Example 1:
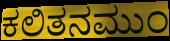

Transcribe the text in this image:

ಕಲಿತನಮುಂ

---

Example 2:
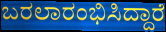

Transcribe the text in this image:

ಬರಲಾರಂಭಿಸಿದ್ದಾರೆ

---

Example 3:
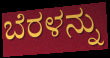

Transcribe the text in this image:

ಬೆರಳನ್ನು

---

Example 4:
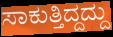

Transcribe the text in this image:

ಸಾಕುತ್ತಿದ್ದದ್ದು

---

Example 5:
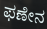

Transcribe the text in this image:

ಫಣೇನ